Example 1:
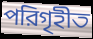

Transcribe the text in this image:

পরিগৃহীত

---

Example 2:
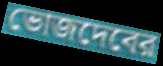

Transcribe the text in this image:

ভোজদেবের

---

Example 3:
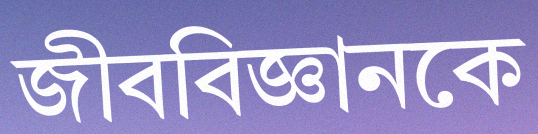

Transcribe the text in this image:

জীববিজ্ঞানকে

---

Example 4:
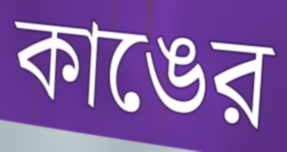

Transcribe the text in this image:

কাঙের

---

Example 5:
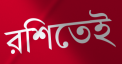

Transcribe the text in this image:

রশিতেই